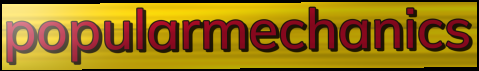
popularmechanics